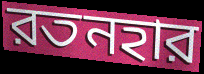
রতনহার